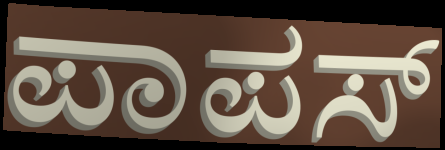
ಪಾಪಸ್